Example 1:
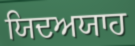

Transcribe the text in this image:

ਯਿਦਅਯਾਹ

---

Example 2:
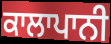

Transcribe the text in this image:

ਕਾਲਾਪਾਨੀ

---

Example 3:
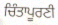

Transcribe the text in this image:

ਚਿੰਤਾਪੂਰਣੀ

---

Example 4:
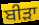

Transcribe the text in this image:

ਬੀੜਾ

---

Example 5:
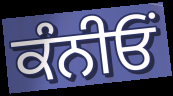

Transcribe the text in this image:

ਕੰਨੀਓਂ